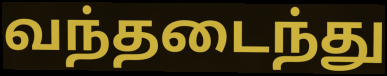
வந்தடைந்து